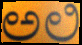
ಅಲಿ